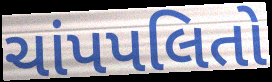
ચાંપપલિતો